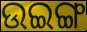
ଉଇଙ୍ଗ